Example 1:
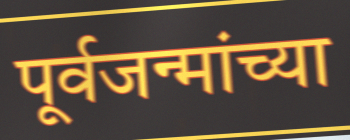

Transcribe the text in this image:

पूर्वजन्मांच्या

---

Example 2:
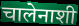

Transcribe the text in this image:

चालेनाशी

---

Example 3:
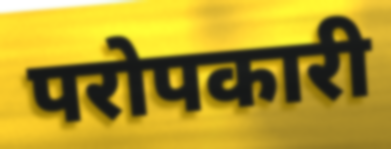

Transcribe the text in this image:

परोपकारी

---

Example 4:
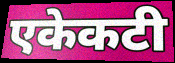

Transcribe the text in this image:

एकेकटी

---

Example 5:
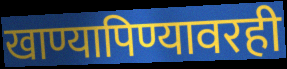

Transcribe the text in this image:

खाण्यापिण्यावरही